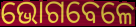
ଭୋଗବେଳେ